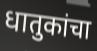
धातुकांचा